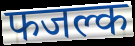
फजल्क